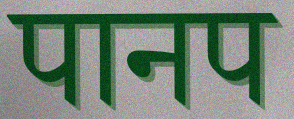
पानप